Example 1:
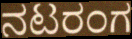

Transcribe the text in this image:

ನಟರಂಗ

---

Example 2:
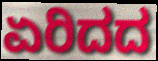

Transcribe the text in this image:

ಏರಿದದ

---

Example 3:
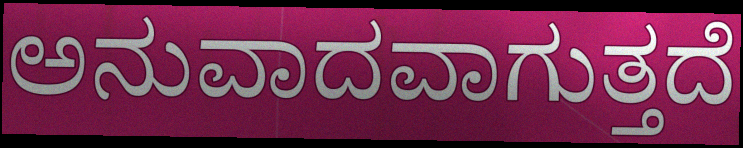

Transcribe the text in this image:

ಅನುವಾದವಾಗುತ್ತದೆ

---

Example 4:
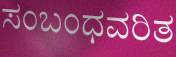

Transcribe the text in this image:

ಸಂಬಂಧವರಿತ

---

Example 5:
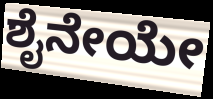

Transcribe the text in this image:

ಶೈನೇಯೇ